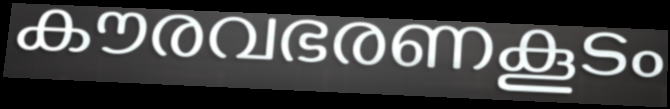
കൗരവഭരണകൂടം